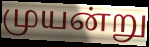
முயன்று